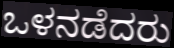
ಒಳನಡೆದರು